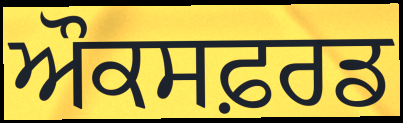
ਔਕਸਫ਼ਰਡ